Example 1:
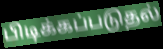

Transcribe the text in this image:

பிடிக்கப்படுதல்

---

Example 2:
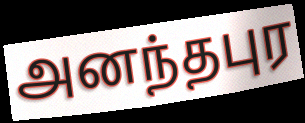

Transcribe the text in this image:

அனந்தபுர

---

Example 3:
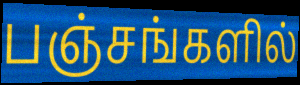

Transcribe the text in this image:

பஞ்சங்களில்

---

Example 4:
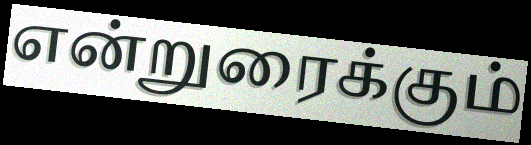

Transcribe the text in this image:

என்றுரைக்கும்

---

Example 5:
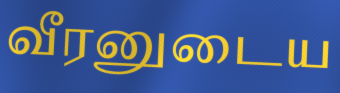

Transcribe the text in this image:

வீரனுடைய